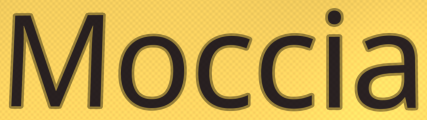
Moccia